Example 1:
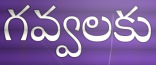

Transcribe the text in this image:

గవ్వలకు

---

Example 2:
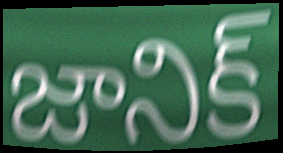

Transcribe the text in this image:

జానిక్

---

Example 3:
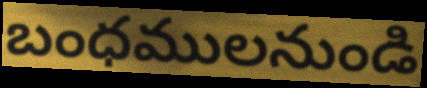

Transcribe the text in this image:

బంధములనుండి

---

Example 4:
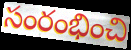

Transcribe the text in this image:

సంరంభించి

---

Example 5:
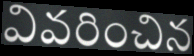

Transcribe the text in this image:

వివరించిన